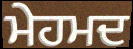
ਮੇਹਮਦ